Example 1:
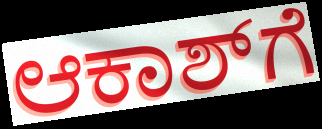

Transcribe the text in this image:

ಆಕಾಶ್‌ಗೆ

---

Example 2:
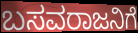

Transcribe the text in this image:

ಬಸವರಾಜನಿಗೆ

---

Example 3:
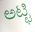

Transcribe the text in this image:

ಅಟ್ಟಿ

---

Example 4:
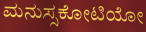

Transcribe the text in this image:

ಮನುಸ್ಸಕೋಟಿಯೋ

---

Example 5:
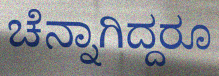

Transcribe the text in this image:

ಚೆನ್ನಾಗಿದ್ದರೂ